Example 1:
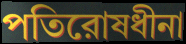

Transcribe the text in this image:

পতিরোষধীনা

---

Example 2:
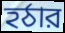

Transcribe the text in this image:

হঠার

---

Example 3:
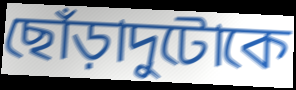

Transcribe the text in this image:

ছোঁড়াদুটোকে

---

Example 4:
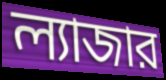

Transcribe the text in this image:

ল্যাজার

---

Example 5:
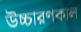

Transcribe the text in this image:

উচ্চারণকাল